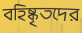
বহিষ্কৃতদের